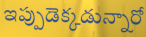
ఇప్పుడెక్కడున్నారో